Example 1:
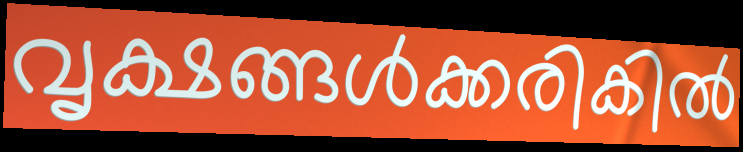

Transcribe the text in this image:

വൃക്ഷങ്ങൾക്കരികിൽ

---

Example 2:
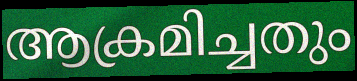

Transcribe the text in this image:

ആക്രമിച്ചതും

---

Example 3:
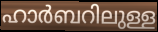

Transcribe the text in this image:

ഹാർബറിലുള്ള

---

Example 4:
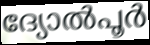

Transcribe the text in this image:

ദ്യോൽപൂർ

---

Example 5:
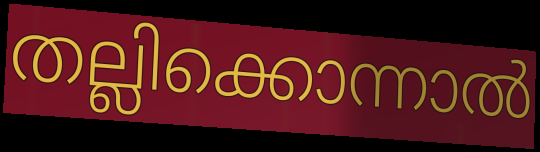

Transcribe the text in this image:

തല്ലിക്കൊന്നാൽ